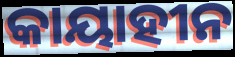
କାୟାହୀନ